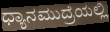
ಧ್ಯಾನಮುದ್ರೆಯಲ್ಲಿ